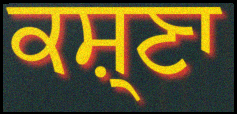
ਕਸ਼੍ਣਾ